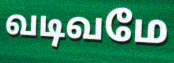
வடிவமே